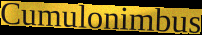
Cumulonimbus